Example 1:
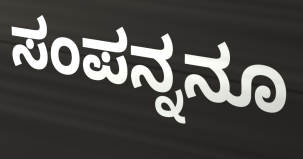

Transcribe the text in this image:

ಸಂಪನ್ನನೂ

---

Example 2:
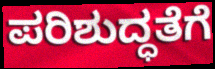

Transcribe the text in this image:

ಪರಿಶುದ್ಧತೆಗೆ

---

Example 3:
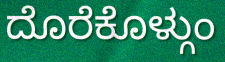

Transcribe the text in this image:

ದೊರೆಕೊಳ್ಗುಂ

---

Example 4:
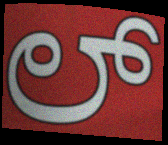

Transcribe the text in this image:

ಲ್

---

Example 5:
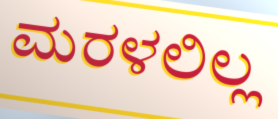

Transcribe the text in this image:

ಮರಳಲಿಲ್ಲ